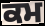
ਕਮ